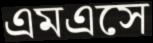
এমএসে